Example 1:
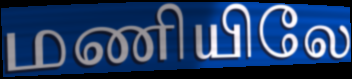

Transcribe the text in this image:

மணியிலே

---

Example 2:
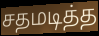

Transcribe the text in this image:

சதமடித்த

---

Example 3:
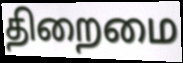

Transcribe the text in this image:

திறைமை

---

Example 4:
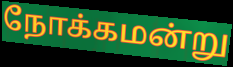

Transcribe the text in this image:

நோக்கமன்று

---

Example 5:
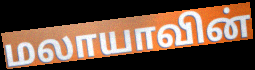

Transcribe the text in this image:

மலாயாவின்